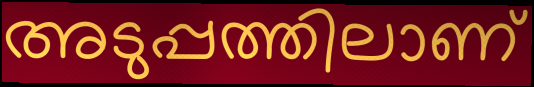
അടുപ്പത്തിലാണ്